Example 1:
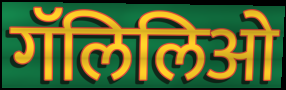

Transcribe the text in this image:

गॅलिलिओ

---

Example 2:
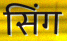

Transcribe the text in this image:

सिंग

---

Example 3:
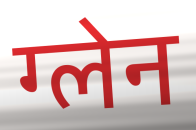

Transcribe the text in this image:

ग्लेन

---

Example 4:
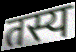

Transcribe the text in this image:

तस्य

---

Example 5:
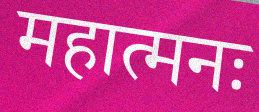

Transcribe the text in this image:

महात्मनः